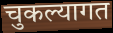
चुकल्यागत